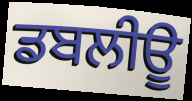
ਡਬਲੀਊ